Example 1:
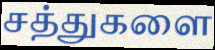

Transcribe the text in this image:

சத்துகளை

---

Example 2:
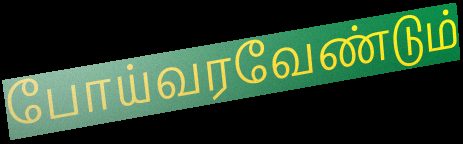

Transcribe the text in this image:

போய்வரவேண்டும்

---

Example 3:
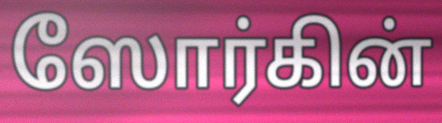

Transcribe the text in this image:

ஸோர்கின்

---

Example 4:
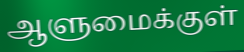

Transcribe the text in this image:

ஆளுமைக்குள்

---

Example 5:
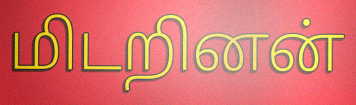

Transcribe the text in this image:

மிடறினன்